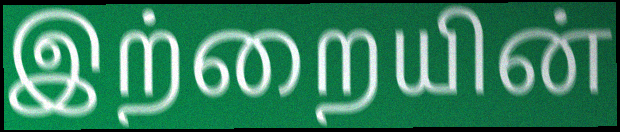
இற்றையின்